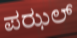
ಪಝಲ್